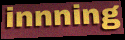
innning